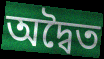
অদ্বৈত